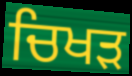
ਚਿਖੜ